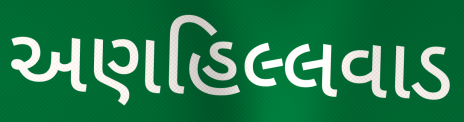
અણહિલ્લવાડ